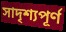
সাদৃশ্যপূর্ণ